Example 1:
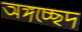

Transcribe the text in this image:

অঙ্গচ্ছেদ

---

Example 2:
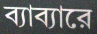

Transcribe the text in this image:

ব্যাব্যারে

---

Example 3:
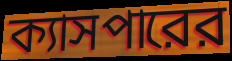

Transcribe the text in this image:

ক্যাসপারের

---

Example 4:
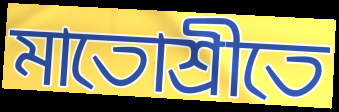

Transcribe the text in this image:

মাতোশ্রীতে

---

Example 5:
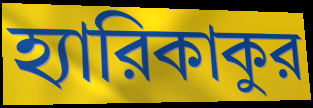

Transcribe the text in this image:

হ্যারিকাকুর